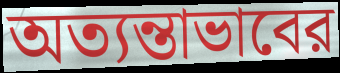
অত্যন্তাভাবের